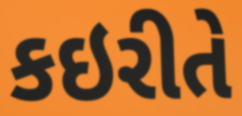
કઇરીતે